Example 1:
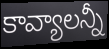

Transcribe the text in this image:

కావ్యాలన్నీ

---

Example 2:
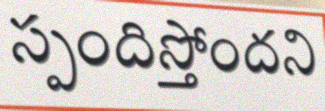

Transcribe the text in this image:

స్పందిస్తోందని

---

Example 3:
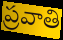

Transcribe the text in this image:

ప్రవాతి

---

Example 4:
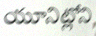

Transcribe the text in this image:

యూనిట్లోని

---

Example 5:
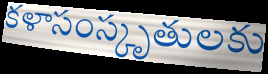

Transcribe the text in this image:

కళాసంస్కృతులకు